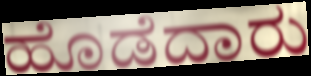
ಹೊಡೆದಾರು